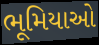
ભૂમિયાઓ